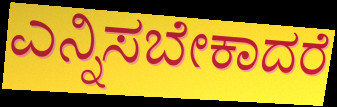
ಎನ್ನಿಸಬೇಕಾದರೆ